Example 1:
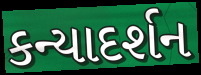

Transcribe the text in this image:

કન્યાદર્શન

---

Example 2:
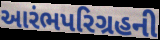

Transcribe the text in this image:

આરંભપરિગ્રહની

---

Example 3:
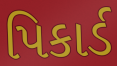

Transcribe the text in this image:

પિકાર્ડ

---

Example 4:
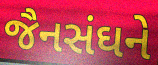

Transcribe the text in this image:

જૈનસંઘને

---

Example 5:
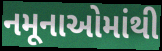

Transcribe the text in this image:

નમૂનાઓમાંથી